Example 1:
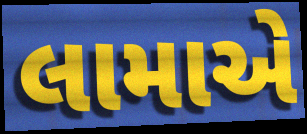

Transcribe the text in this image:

લામાએ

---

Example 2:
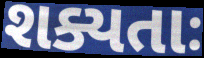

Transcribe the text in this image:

શક્યતાઃ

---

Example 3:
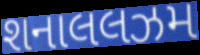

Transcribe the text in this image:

શનાલલઝમ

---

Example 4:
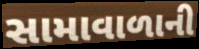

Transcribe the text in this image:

સામાવાળાની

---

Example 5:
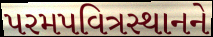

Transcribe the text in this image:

પરમપવિત્રસ્થાનને